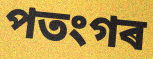
পতংগৰ